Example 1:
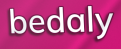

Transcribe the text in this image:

bedaly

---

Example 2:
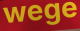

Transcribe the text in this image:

wege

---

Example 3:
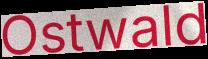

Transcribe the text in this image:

Ostwald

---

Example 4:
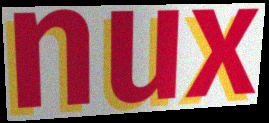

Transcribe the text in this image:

nux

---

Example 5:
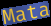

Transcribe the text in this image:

Mata